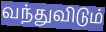
வந்துவிடும்